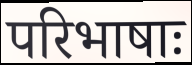
परिभाषाः